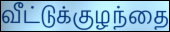
வீட்டுக்குழந்தை